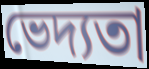
ভেদ্যতা